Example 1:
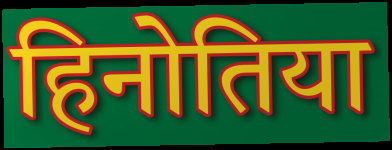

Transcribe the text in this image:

हिनोतिया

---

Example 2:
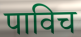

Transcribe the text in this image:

पाविच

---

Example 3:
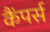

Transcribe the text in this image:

कैंपर्स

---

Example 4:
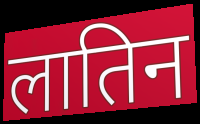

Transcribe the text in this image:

लातिन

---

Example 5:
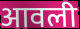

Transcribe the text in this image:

आवली